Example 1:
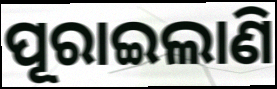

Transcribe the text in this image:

ପୂରାଇଲାଣି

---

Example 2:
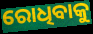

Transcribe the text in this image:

ରୋଧିବାକୁ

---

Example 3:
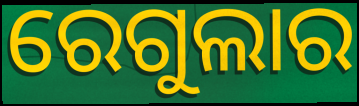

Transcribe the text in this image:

ରେଗୁଲାର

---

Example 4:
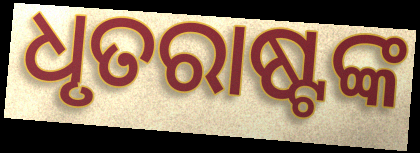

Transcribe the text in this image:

ଧୃତରାଷ୍ଟଙ୍କ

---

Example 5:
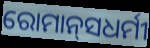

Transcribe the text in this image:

ରୋମାନ୍‌ସଧର୍ମୀ